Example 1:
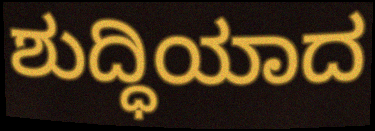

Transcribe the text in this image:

ಶುದ್ಧಿಯಾದ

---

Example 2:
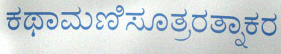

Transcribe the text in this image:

ಕಥಾಮಣಿಸೂತ್ರರತ್ನಾಕರ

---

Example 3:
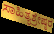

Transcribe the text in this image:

ಸಾಹಿತ್ಯಶ್ರೇಷ್ಠರ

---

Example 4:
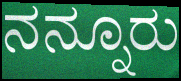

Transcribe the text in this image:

ನನ್ನೂರು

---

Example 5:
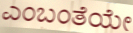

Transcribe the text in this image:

ಎಂಬಂತೆಯೇ